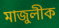
মাজুলীক